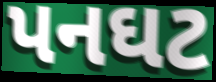
પનઘટ